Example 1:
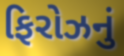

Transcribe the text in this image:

ફિરોઝનું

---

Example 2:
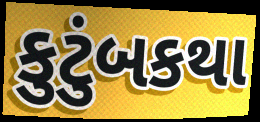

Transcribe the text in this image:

કુટુંબકથા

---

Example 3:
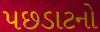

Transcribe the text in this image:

પછડાટનો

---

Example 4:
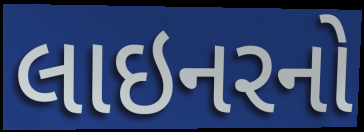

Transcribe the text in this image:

લાઇનરનો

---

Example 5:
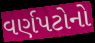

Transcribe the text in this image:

વર્ણપટોનો